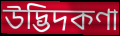
উদ্ভিদকণা